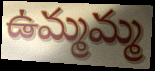
ఉమ్మమ్మ